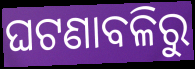
ଘଟଣାବଳିରୁ